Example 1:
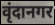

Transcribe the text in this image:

वृंदानगर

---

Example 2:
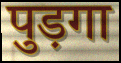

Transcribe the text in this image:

पुड़गा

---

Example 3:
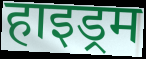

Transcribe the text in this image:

हाइड्रम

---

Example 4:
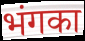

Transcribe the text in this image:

भंगका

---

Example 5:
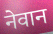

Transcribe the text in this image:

नेवान